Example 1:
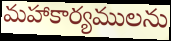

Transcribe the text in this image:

మహాకార్యములను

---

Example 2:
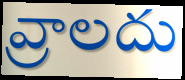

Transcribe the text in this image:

వ్రాలదు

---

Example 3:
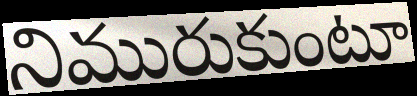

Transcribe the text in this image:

నిమురుకుంటూ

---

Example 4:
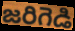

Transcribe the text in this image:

జరిగెడి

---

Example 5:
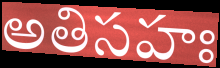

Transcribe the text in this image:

అతిసహః